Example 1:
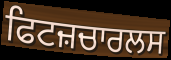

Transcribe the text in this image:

ਫਿਟਜ਼ਚਾਰਲਸ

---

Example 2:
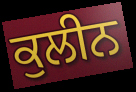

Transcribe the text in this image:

ਕੁਲੀਨ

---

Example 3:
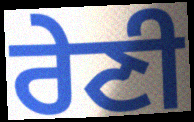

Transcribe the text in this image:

ਰੇਣੀ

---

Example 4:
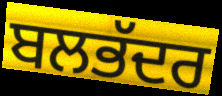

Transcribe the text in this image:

ਬਲਭੱਦਰ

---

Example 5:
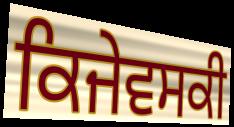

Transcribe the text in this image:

ਕਿਜੇਵਸਕੀ